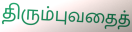
திரும்புவதைத்